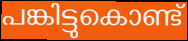
പങ്കിട്ടുകൊണ്ട്